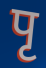
पृ